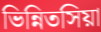
ভিন্নিতসিয়া